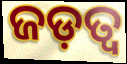
ଜଡ଼ତ୍ଵ